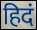
हिदं